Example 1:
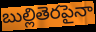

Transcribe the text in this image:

బుల్లితెరపైనా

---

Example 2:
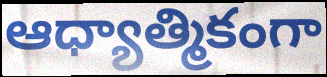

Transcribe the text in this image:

ఆధ్యాత్మికంగా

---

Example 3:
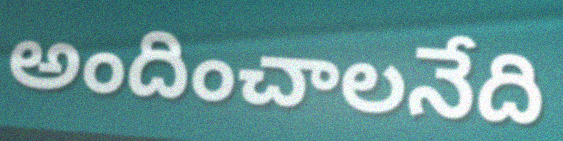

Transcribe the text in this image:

అందించాలనేది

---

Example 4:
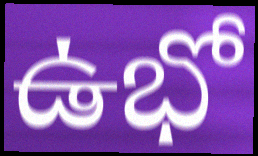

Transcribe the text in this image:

ఉభో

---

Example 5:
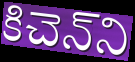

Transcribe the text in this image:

కిచెన్‌ని